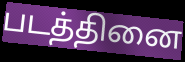
படத்தினை